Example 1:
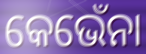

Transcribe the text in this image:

କେଭେଁନା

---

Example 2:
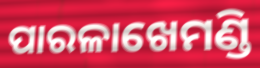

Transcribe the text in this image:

ପାରଳାଖେମଣ୍ଡି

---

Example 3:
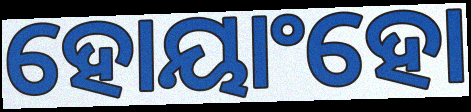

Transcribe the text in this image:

ହୋୟାଂହୋ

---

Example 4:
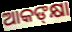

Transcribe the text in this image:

ଆକଙ୍‍କ୍ଷା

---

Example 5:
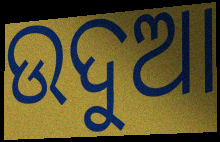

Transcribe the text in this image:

ଉଦୁଆ